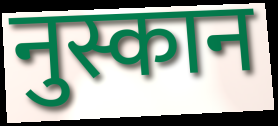
नुस्कान